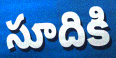
సూదికి